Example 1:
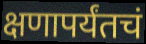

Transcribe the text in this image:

क्षणापर्यंतचं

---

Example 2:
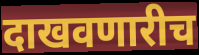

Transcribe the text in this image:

दाखवणारीच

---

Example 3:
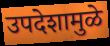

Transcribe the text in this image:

उपदेशामुळे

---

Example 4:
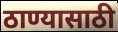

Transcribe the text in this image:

ठाण्यासाठी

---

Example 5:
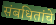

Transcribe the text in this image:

संबधितांचे